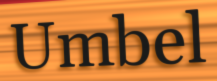
Umbel